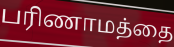
பரிணாமத்தை